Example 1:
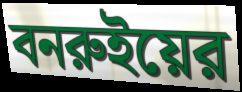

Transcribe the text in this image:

বনরুইয়ের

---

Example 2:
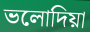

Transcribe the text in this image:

ভলোদিয়া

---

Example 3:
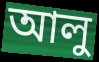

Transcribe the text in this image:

আলু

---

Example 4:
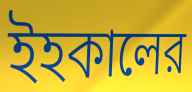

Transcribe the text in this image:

ইহকালের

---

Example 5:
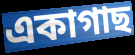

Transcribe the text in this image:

একাগাছ